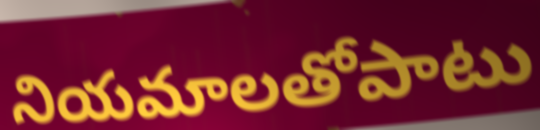
నియమాలతోపాటు